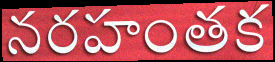
నరహంతక